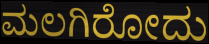
ಮಲಗಿರೋದು